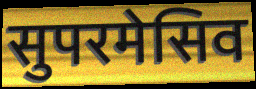
सुपरमेसिव